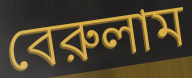
বেরুলাম